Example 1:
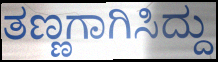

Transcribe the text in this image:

ತಣ್ಣಗಾಗಿಸಿದ್ದು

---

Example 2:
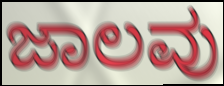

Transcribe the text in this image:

ಜಾಲವು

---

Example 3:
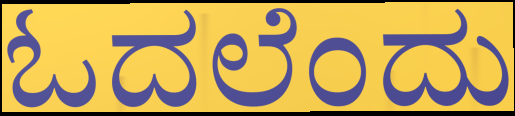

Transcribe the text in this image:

ಓದಲೆಂದು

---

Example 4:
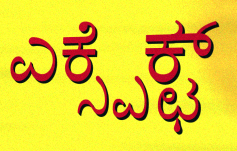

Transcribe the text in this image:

ಎಕ್ಸ್ಪೆಕ್ಟ್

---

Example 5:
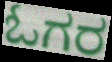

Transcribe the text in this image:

ಓಗರ